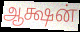
ஆக்ஷன்